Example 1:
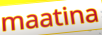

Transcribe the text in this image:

maatina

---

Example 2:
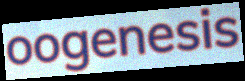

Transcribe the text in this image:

oogenesis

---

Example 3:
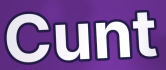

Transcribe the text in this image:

Cunt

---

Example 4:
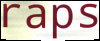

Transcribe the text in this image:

raps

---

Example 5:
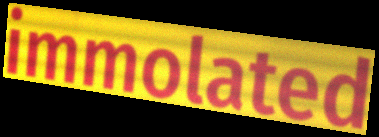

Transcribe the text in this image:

immolated